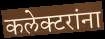
कलेक्टरांना